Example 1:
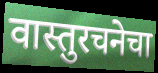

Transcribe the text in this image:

वास्तुरचनेचा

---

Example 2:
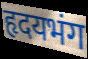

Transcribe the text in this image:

हृदयभंग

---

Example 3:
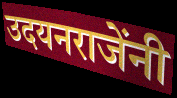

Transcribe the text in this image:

उदयनराजेंनी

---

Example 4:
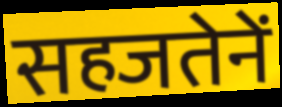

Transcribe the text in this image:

सहजतेनें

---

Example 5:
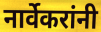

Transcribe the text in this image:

नार्वेकरांनी